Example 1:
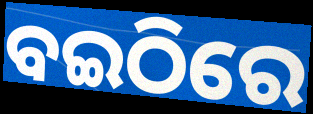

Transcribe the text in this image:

ବଇଠିରେ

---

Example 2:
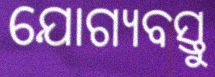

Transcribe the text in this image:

ଯୋଗ୍ୟବସ୍ତୁ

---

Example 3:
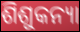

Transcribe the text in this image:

ଶିଶୁକନ୍ୟା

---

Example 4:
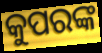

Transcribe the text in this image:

କୁପରଙ୍କ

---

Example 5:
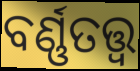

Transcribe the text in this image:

ବର୍ଣ୍ଣତତ୍ତ୍ଵ